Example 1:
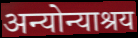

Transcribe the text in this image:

अन्योन्याश्रय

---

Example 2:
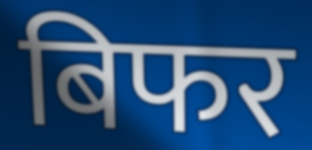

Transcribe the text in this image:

बिफर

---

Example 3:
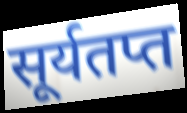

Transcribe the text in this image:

सूर्यतप्त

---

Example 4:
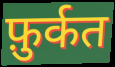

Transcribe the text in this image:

फ़ुर्कत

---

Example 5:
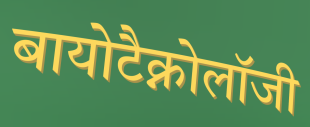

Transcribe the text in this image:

बायोटैक्नोलॉजी